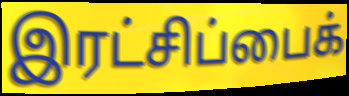
இரட்சிப்பைக்